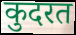
कुदरत